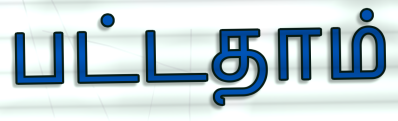
பட்டதாம்